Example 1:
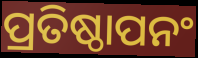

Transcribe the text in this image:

ପ୍ରତିଷ୍ଠାପନଂ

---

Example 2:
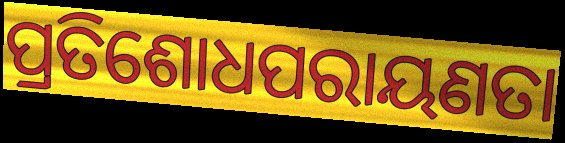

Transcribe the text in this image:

ପ୍ରତିଶୋଧପରାୟଣତା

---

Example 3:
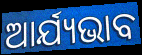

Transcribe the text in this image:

ଆର୍ଯ୍ୟଭାବ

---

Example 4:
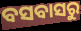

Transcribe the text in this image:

ବସବାସରୁ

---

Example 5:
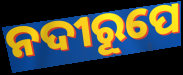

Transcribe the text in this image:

ନଦୀରୂପେ